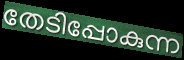
തേടിപ്പോകുന്ന